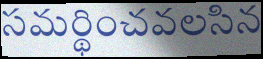
సమర్థించవలసిన